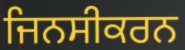
ਜਿਨਸੀਕਰਨ